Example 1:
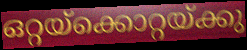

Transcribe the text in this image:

ഒറ്റയ്ക്കൊറ്റയ്ക്കു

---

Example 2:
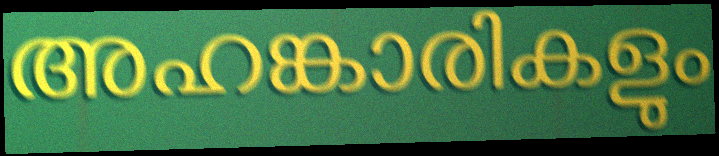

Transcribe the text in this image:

അഹങ്കാരികളും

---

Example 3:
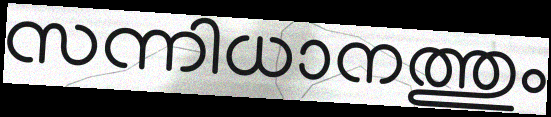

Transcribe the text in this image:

സന്നിധാനത്തും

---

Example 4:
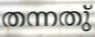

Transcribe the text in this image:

തന്നതു്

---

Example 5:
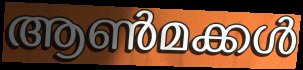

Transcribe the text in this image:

ആൺമക്കൾ